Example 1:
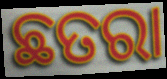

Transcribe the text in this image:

ଛତରା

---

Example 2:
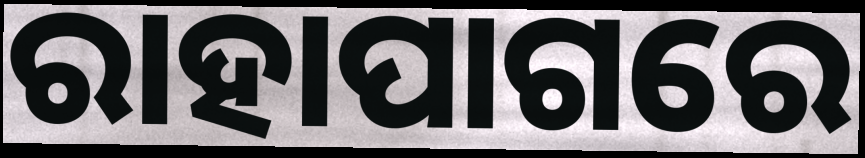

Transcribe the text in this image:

ରାହାପାଗରେ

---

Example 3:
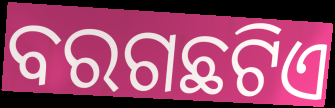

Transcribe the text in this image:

ବରଗଛଟିଏ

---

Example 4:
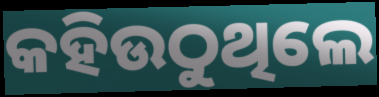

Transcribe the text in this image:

କହିଉଠୁଥିଲେ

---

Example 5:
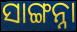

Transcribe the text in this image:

ସାଙ୍ଗନ୍ନା